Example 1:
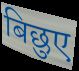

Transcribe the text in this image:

बिछुए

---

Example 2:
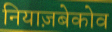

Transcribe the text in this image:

नियाज़बेकोव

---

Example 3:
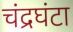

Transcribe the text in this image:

चंद्रघंटा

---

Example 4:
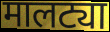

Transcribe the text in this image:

मालट्या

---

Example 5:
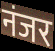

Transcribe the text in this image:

नंजर